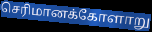
செரிமானக்கோளாறு